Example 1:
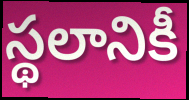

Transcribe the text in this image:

స్థలానికీ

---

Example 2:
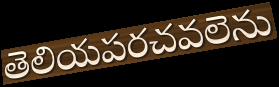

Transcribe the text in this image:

తెలియపరచవలెను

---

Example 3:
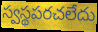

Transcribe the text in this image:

స్వస్థపరచలేదు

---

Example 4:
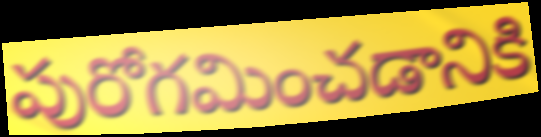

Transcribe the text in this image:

పురోగమించడానికి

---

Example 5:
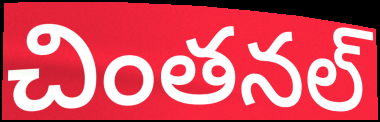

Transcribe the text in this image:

చింతనల్